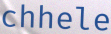
chhele